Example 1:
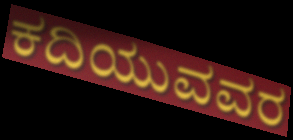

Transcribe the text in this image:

ಕದಿಯುವವರ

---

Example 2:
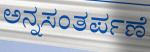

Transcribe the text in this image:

ಅನ್ನಸಂತರ್ಪಣೆ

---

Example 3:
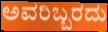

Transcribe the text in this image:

ಅವರಿಬ್ಬರದು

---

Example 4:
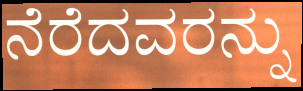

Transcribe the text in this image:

ನೆರೆದವರನ್ನು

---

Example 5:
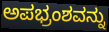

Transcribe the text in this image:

ಅಪಭ್ರಂಶವನ್ನು